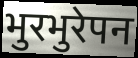
भुरभुरेपन